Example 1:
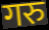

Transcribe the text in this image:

गरु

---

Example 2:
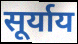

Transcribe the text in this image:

सूर्याय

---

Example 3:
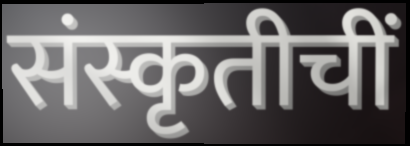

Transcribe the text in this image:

संस्कृतीचीं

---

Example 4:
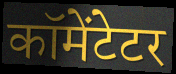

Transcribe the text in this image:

कॉमेंटेटर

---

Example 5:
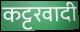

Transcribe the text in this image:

कट्टरवादी